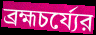
ব্রহ্মচর্য্যের